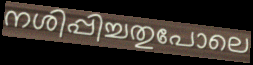
നശിപ്പിച്ചതുപോലെ